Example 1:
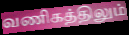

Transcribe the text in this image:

வணிகத்திலும்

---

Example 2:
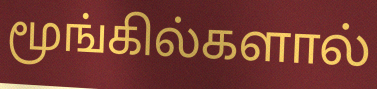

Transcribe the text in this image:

மூங்கில்களால்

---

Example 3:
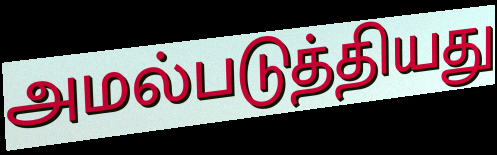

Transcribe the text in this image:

அமல்படுத்தியது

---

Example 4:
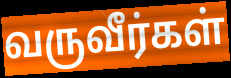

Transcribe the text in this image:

வருவீர்கள்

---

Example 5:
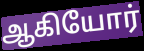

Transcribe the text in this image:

ஆகியோர்